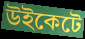
উইকেটে